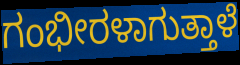
ಗಂಭೀರಳಾಗುತ್ತಾಳೆ